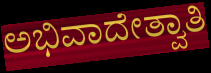
ಅಭಿವಾದೇತ್ವಾತಿ